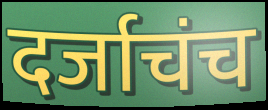
दर्जाचंच